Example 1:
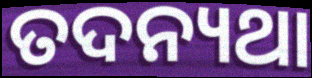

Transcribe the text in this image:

ତଦନ୍ୟଥା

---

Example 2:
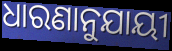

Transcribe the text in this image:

ଧାରଣାନୁଯାୟୀ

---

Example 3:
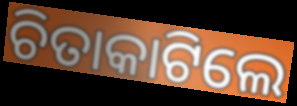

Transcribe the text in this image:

ଚିତାକାଟିଲେ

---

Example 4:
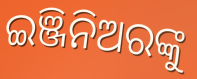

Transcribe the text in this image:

ଇଞ୍ଜିନିଅରଙ୍କୁ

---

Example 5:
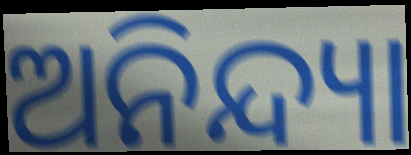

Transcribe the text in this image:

ଅନିନ୍ଦ୍ୟା